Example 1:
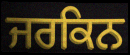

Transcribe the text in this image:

ਜਰਕਿਨ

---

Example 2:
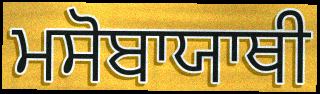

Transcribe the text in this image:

ਮਸੋਬਾਯਾਥੀ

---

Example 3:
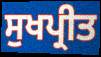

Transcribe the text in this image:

ਸੁਖਪ੍ਰੀਤ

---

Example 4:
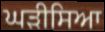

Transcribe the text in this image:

ਘੜੀਸਿਆ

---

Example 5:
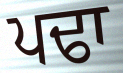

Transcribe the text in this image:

ਪਢਾ